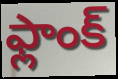
ఫ్లాంక్